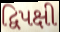
દ્વિપક્ષી